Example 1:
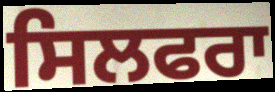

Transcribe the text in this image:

ਸਿਲਫਰਾ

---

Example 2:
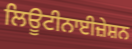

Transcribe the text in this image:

ਲਿਊਟੀਨਾਈਜ਼ੇਸ਼ਨ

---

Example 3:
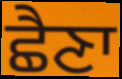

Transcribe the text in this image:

ਛੈਣਾ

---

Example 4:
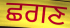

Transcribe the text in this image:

ਛਗਣ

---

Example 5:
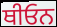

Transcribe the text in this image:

ਥੀਓਨ